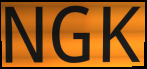
NGK